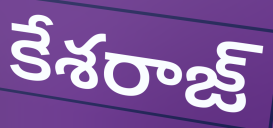
కేశరాజ్